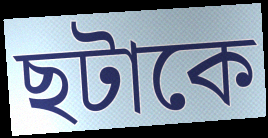
ছটাকে